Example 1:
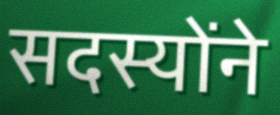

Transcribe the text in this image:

सदस्योंने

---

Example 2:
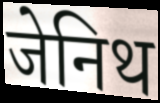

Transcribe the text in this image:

जेनिथ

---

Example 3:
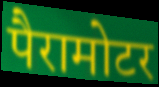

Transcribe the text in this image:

पैरामोटर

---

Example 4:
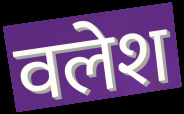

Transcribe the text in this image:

वलेश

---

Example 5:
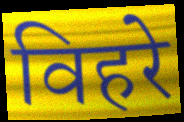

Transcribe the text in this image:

विहरे